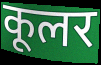
कूलर